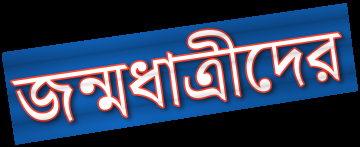
জন্মধাত্রীদের